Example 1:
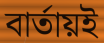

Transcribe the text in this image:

বার্তায়ই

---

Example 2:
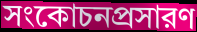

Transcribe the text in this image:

সংকোচনপ্রসারণ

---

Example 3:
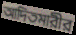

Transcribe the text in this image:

আদিতমারীর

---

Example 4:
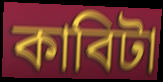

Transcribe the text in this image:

কাবিটা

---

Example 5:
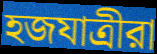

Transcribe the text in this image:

হজযাত্রীরা